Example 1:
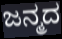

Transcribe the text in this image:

ಜನ್ಮದ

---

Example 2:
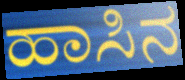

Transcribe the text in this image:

ಹಾಸಿನ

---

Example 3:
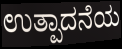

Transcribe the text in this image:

ಉತ್ಪಾದನೆಯ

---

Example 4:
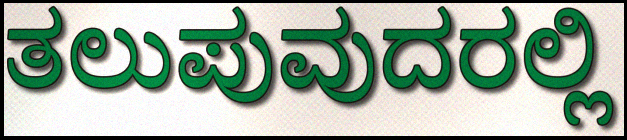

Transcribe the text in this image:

ತಲುಪುವುದರಲ್ಲಿ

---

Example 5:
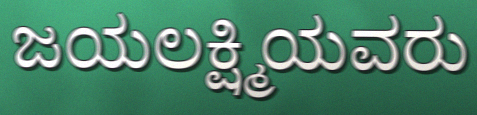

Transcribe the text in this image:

ಜಯಲಕ್ಷ್ಮಿಯವರು